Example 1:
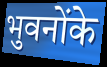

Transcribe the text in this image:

भुवनोंके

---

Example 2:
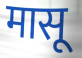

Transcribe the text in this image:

मासू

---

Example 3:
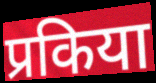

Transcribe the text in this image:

प्रकिया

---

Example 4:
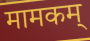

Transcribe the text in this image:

मामकम्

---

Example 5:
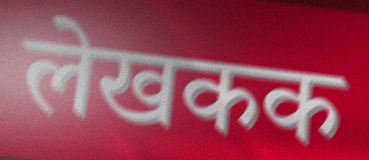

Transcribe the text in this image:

लेखकक